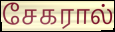
சேகரால்